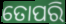
ତୋପରି